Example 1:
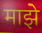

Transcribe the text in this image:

माझे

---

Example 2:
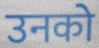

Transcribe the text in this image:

उनको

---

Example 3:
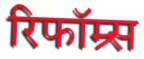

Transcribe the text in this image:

रिफॉम्र्स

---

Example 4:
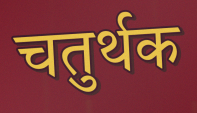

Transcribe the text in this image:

चतुर्थक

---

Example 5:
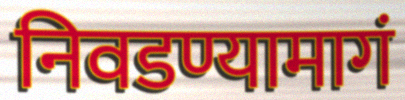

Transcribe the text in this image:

निवडण्यामागं